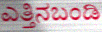
ಎತ್ತಿನಬಂಡಿ